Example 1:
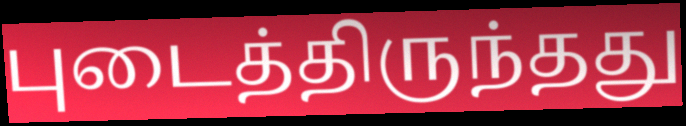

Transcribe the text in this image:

புடைத்திருந்தது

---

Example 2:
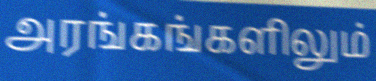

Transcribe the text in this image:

அரங்கங்களிலும்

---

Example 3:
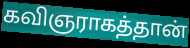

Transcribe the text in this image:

கவிஞராகத்தான்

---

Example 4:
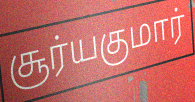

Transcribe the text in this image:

சூர்யகுமார்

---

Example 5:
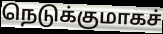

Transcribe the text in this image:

நெடுக்குமாகச்